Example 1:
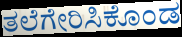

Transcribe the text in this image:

ತಲೆಗೇರಿಸಿಕೊಂಡ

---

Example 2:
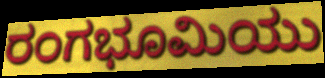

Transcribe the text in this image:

ರಂಗಭೂಮಿಯು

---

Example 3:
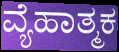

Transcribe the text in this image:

ವ್ಯೆಹಾತ್ಮಕ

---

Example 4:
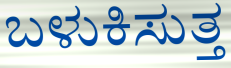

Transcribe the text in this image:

ಬಳುಕಿಸುತ್ತ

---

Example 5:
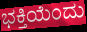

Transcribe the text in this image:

ಭಕ್ತಿಯೆಂದು